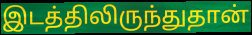
இடத்திலிருந்துதான்